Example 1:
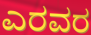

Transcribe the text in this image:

ಎರವರ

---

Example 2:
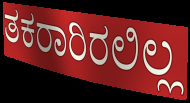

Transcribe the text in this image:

ತಕರಾರಿರಲಿಲ್ಲ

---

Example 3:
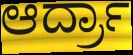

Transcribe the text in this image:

ಆರ್ದ್ರಾ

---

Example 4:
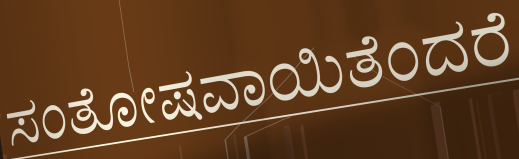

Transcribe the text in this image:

ಸಂತೋಷವಾಯಿತೆಂದರೆ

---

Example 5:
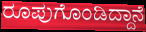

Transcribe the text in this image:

ರೂಪುಗೊಂಡಿದ್ದಾನೆ